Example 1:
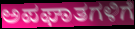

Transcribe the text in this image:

ಅಪಘಾತಗಳಿಗೆ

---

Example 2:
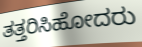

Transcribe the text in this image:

ತತ್ತರಿಸಿಹೋದರು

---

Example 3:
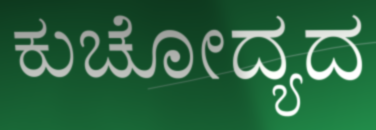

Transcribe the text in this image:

ಕುಚೋದ್ಯದ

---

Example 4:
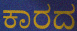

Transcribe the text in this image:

ಕಾರದ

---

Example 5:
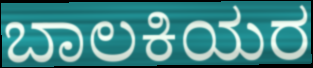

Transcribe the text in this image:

ಬಾಲಕಿಯರ